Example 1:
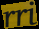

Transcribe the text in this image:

rri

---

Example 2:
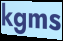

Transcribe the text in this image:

kgms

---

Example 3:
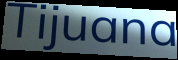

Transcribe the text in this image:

Tijuana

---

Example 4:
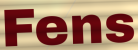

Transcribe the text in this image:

Fens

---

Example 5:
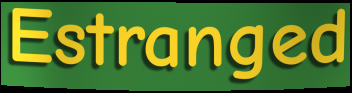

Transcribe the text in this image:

Estranged